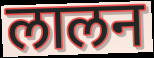
लालन